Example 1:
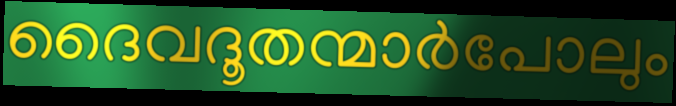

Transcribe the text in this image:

ദൈവദൂതന്മാർപോലും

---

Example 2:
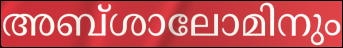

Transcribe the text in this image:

അബ്ശാലോമിനും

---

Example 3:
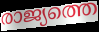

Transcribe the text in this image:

രാജ്യത്തെ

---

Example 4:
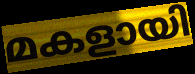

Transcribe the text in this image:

മകളായി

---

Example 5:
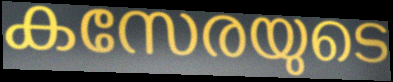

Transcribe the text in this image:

കസേരയുടെ